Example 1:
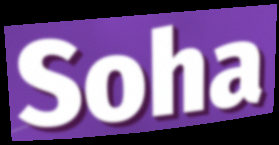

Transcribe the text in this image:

Soha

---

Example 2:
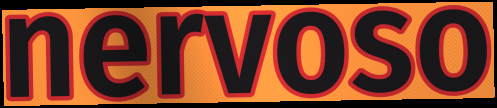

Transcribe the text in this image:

nervoso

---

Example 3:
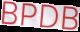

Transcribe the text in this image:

BPDB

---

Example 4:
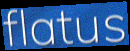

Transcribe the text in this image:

flatus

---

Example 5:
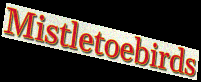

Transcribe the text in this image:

Mistletoebirds